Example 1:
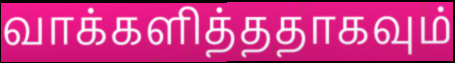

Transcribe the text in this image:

வாக்களித்ததாகவும்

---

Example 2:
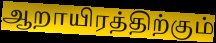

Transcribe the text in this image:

ஆறாயிரத்திற்கும்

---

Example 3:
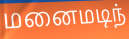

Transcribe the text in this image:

மனைமடிந்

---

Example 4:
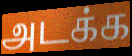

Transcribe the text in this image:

அடக்க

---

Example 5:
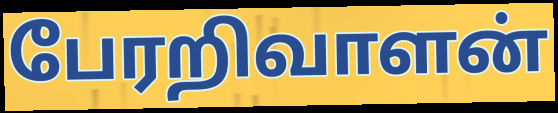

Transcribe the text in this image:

பேரறிவாளன்